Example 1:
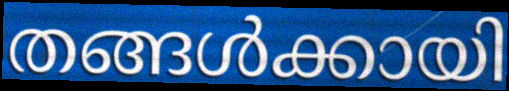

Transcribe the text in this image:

തങ്ങൾക്കായി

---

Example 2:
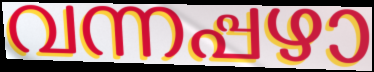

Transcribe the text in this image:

വന്നപ്പഴാ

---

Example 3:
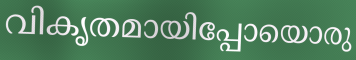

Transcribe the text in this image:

വികൃതമായിപ്പോയൊരു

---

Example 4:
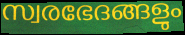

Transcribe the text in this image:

സ്വരഭേദങ്ങളും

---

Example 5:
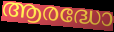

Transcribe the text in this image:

ആരദ്ധോ